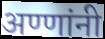
अण्णांनी